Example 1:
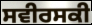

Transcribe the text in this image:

ਸਵੀਰਸਕੀ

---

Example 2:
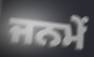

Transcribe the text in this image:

ਜਨਮੇਂ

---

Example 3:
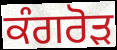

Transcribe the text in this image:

ਕੰਗਰੋੜ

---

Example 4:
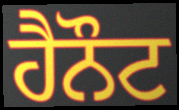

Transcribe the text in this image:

ਹੈਨੌਟ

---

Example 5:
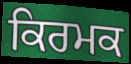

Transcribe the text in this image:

ਕਿਰਮਕ